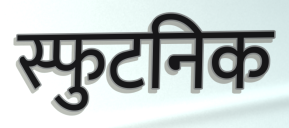
स्फुटनिक